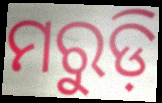
ମରୁଡ଼ି